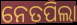
ନେତପିଲା